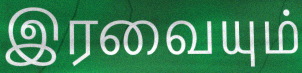
இரவையும்